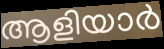
ആളിയാർ